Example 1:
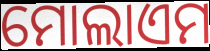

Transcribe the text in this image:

ମୋଲାଏମ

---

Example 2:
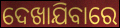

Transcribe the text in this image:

ଦେଖାଯିବାରେ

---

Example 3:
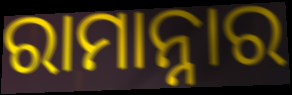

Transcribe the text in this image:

ରାମାନ୍ନାର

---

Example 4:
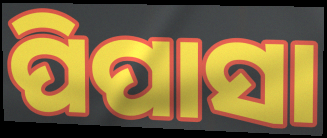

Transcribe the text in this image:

ପିପାସା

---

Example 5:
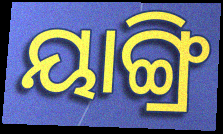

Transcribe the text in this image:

ୟାଙ୍ଗ୍ରି